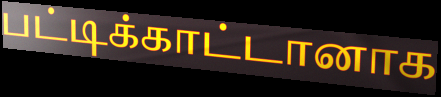
பட்டிக்காட்டானாக